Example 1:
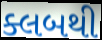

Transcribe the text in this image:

ક્લબથી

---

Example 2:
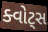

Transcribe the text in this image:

ક્વોટ્સ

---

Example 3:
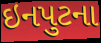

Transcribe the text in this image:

ઇનપુટના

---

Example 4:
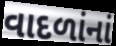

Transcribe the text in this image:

વાદળાંનાં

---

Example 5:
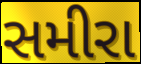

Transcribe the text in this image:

સમીરા